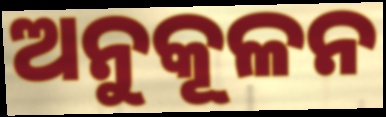
ଅନୁକୂଳନ